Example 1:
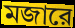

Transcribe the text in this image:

মজারে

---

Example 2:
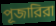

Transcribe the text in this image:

পূজারিরা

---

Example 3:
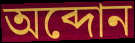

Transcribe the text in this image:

অব্দোন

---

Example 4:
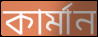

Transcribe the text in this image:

কার্মান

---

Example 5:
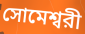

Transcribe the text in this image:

সোমেশ্বরী